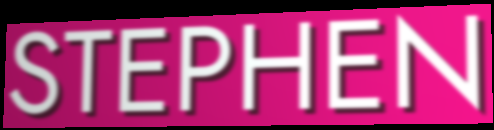
STEPHEN